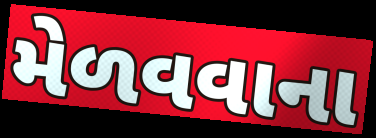
મેળવવાના